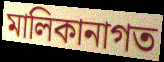
মালিকানাগত